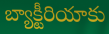
బ్యాక్టీరియాకు